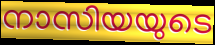
നാസിയയുടെ